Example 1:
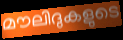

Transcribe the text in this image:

മൗലിദുകളുടെ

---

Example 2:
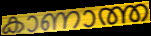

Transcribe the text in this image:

കാണാത്ത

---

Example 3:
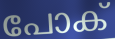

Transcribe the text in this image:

പോക്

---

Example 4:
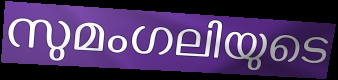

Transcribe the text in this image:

സുമംഗലിയുടെ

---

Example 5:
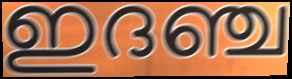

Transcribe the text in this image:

ഇദഞ്ച